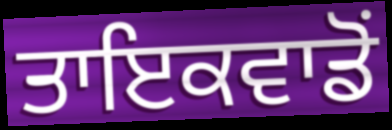
ਤਾਇਕਵਾਡੋਂ